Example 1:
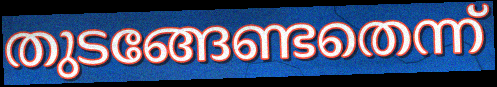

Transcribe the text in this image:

തുടങ്ങേണ്ടതെന്ന്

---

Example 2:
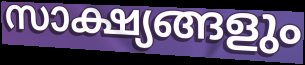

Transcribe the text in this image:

സാക്ഷ്യങ്ങളും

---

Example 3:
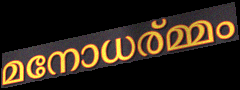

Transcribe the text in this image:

മനോധര്മ്മം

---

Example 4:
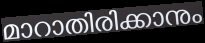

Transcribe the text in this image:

മാറാതിരിക്കാനും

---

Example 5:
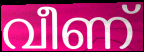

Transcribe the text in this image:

വീണ്